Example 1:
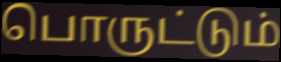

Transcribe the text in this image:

பொருட்டும்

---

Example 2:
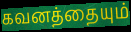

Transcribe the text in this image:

கவனத்தையும்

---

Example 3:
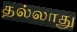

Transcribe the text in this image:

தல்லாது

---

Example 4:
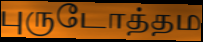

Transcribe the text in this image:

புருடோத்தம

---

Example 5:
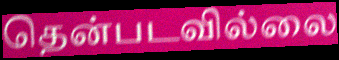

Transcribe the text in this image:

தென்படவில்லை